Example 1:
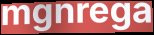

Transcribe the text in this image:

mgnrega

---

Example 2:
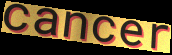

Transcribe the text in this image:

cancer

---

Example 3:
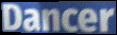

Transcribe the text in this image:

Dancer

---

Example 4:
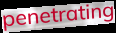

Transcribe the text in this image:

penetrating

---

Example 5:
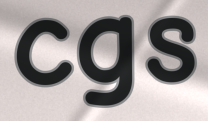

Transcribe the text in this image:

cgs